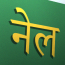
नेल